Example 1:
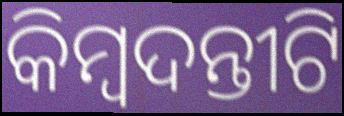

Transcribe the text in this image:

କିମ୍ୱଦନ୍ତୀଟି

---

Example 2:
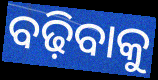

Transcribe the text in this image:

ବଢ଼ିବାକୁ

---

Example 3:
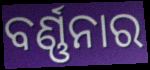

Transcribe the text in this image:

ବର୍ଣ୍ଣନାର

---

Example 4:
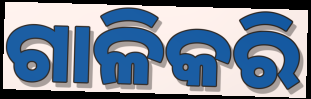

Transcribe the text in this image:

ଗାଳିକରି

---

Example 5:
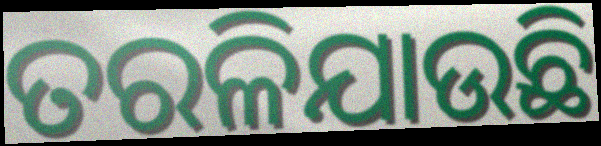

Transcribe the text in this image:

ତରଳିଯାଉଛି